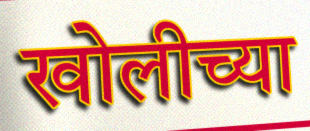
खोलीच्या